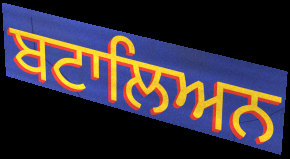
ਬਟਾਲਿਅਨ